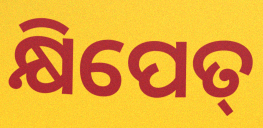
କ୍ଷିପେତ୍